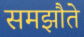
समझौते